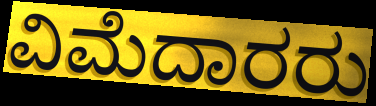
ವಿಮೆದಾರರು